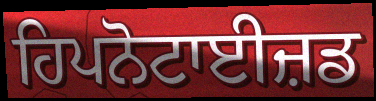
ਹਿਪਨੋਟਾਈਜ਼ਡ